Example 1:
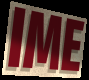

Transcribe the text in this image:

IME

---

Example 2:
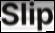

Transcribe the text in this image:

Slip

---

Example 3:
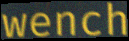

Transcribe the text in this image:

wench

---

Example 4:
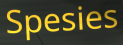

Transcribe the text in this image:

Spesies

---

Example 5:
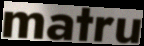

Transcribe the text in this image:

matru